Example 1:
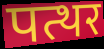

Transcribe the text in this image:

पत्थर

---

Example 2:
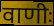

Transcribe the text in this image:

वाणीः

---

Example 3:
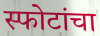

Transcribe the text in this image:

स्फोटांचा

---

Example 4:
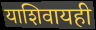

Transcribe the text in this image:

याशिवायही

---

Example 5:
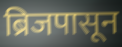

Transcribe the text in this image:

ब्रिजपासून